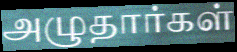
அழுதார்கள்